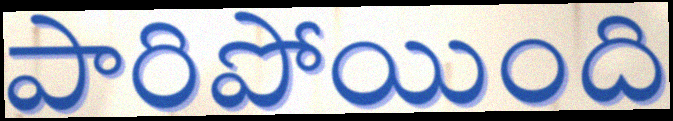
పారిపోయింది